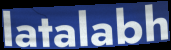
latalabh